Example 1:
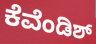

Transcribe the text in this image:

ಕೆವೆಂಡಿಶ್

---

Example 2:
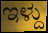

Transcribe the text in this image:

ಇಳ್ದು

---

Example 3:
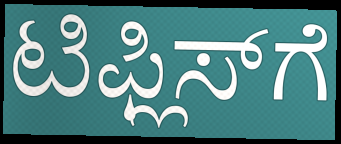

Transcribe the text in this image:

ಟಿಫ್ಲಿಸ್‍ಗೆ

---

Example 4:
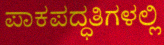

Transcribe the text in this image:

ಪಾಕಪದ್ಧತಿಗಳಲ್ಲಿ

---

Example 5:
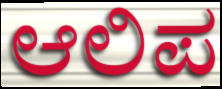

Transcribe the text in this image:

ಆಲಿಪ